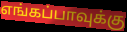
எங்கப்பாவுக்கு